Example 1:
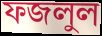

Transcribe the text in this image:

ফজলুল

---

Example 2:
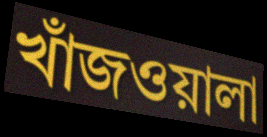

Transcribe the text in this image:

খাঁজওয়ালা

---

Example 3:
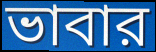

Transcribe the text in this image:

ভাবার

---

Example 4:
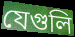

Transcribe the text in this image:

যেগুলি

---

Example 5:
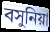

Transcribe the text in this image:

বসুনিয়া